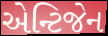
એન્ટિજેન